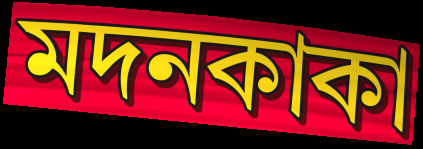
মদনকাকা